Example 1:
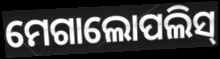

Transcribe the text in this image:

ମେଗାଲୋପଲିସ୍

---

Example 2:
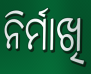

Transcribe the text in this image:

ନିର୍ମାଖି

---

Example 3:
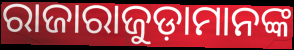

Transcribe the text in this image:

ରାଜାରାଜୁଡ଼ାମାନଙ୍କ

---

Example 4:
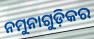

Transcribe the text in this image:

ନମୁନାଗୁଡ଼ିକର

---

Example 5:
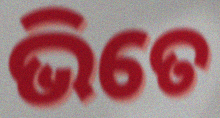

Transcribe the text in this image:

ଭିତେ